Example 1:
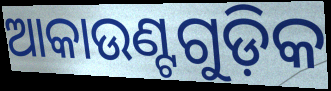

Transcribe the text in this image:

ଆକାଉଣ୍ଟଗୁଡ଼ିକ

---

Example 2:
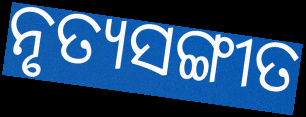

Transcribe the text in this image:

ନୃତ୍ୟସଙ୍ଗୀତ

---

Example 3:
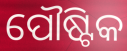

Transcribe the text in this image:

ପୌଷ୍ଟିକ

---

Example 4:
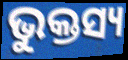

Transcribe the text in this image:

ଭୁକ୍ତସ୍ୟ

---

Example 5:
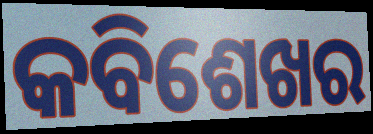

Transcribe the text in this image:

କବିଶେଖର